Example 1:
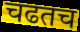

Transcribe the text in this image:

चढतच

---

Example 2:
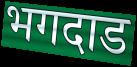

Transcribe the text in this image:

भगदाड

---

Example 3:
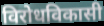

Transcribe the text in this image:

विरोधविकासी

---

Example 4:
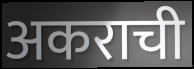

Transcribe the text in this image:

अकराची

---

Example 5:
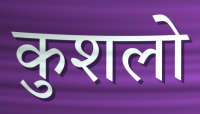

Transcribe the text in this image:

कुशलो